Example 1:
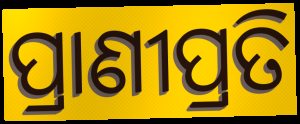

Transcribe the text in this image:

ପ୍ରାଣୀପ୍ରତି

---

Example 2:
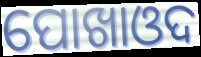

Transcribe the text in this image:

ପୋଖାଓଦ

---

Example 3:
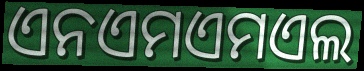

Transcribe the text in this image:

ଏନଏମଏମଏଲ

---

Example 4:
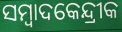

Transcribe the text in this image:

ସମ୍ୱାଦକେନ୍ଦ୍ରୀକ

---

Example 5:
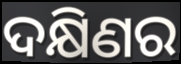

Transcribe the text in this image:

ଦକ୍ଷିଣର